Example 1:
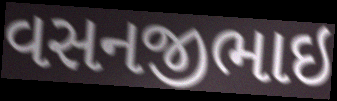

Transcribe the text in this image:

વસનજીભાઇ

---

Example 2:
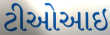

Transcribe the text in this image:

ટીઓઆઇ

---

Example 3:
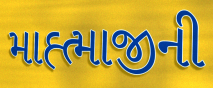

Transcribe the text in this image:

માહ્ત્માજીની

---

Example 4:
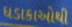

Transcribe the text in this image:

ધડાકાઓથી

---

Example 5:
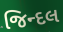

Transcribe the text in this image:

જિન્દલ